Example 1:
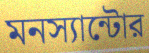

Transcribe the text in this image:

মনস্যান্টোর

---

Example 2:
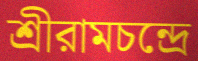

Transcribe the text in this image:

শ্রীরামচন্দ্রে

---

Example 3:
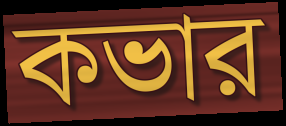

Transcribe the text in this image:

কভার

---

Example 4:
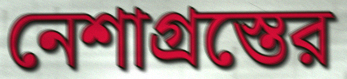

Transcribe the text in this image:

নেশাগ্রস্তের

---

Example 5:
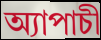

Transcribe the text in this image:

অ্যাপাচী